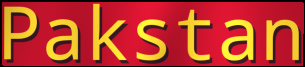
Pakstan